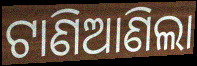
ଟାଣିଆଣିଲା